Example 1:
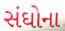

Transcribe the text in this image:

સંઘોના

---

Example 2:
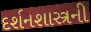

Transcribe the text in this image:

દર્શનશાસ્ત્રની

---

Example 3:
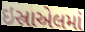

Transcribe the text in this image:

ઇસ્રાએલમાં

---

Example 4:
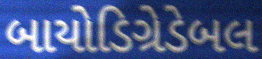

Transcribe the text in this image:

બાયોડિગ્રેડેબલ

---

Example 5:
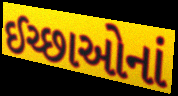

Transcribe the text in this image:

ઈચ્છાઓનાં